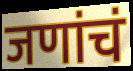
जणांचं